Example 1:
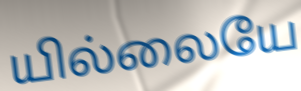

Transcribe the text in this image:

யில்லையே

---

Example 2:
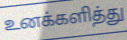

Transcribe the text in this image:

உனக்களித்து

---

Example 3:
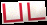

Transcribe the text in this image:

பட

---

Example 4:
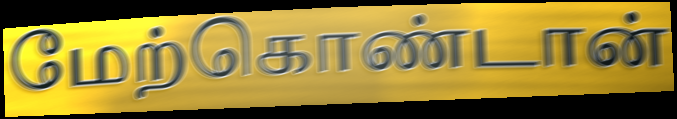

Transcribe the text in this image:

மேற்கொண்டான்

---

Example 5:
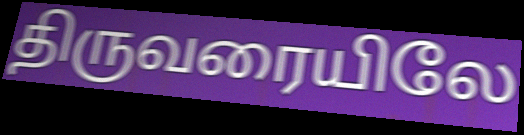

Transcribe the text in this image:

திருவரையிலே